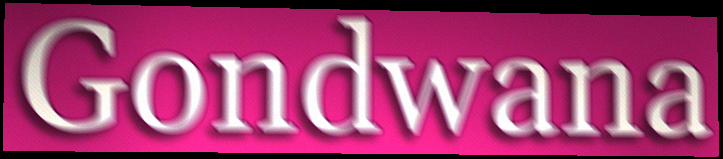
Gondwana